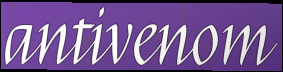
antivenom